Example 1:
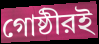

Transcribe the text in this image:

গোষ্ঠীরই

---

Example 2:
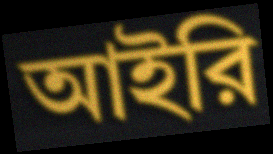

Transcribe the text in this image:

আইরি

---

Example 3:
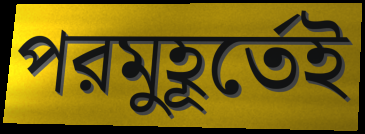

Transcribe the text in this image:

পরমুহূর্তেই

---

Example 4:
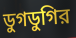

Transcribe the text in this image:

ডুগডুগির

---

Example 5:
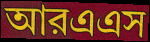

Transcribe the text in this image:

আরএএস